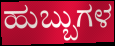
ಹುಬ್ಬುಗಳ